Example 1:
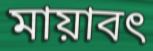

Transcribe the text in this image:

মায়াবৎ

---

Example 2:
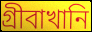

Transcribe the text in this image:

গ্রীবাখানি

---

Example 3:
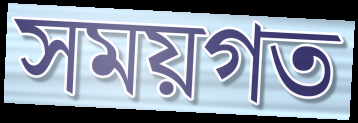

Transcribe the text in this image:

সময়গত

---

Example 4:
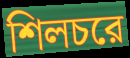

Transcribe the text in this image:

শিলচরে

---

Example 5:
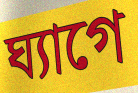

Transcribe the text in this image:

ঘ্যাগে